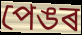
পেঙৰ